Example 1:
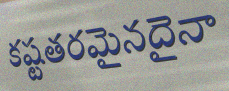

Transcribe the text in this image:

కష్టతరమైనదైనా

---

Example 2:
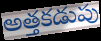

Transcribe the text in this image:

అత్తకడుపు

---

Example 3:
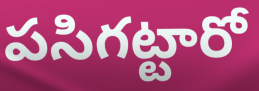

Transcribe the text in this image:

పసిగట్టారో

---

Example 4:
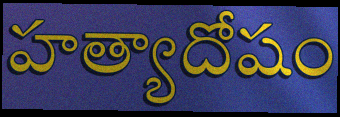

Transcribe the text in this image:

హత్యాదోషం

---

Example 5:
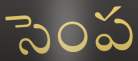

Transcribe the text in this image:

సెంప